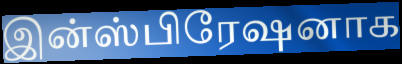
இன்ஸ்பிரேஷனாக